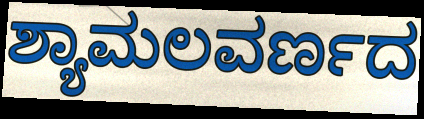
ಶ್ಯಾಮಲವರ್ಣದ